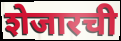
शेजारची